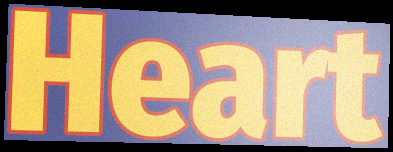
Heart